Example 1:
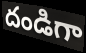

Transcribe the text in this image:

దండిగా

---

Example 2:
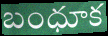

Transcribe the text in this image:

బంధూక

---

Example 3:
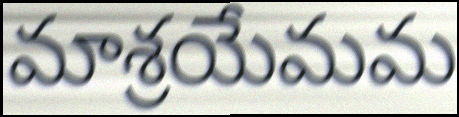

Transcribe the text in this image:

మాశ్రయేమమ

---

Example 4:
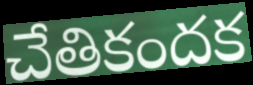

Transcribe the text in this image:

చేతికందక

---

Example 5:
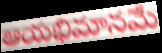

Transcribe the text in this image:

ఆయభిమానమే